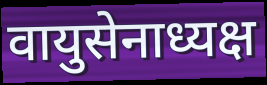
वायुसेनाध्यक्ष